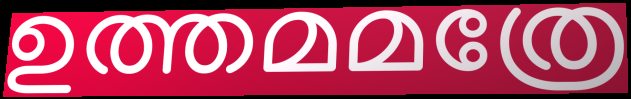
ഉത്തമമത്രേ